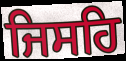
ਜਿਸਹਿ